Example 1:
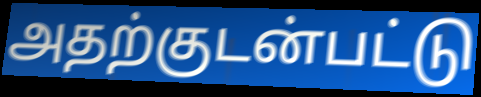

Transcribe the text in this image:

அதற்குடன்பட்டு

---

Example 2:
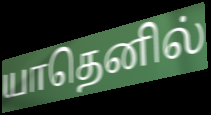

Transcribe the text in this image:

யாதெனில்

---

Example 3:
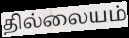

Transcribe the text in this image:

தில்லையம்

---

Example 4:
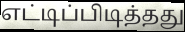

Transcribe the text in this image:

எட்டிப்பிடித்தது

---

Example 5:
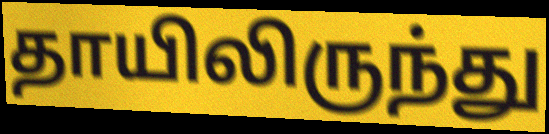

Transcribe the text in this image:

தாயிலிருந்து